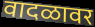
वादळावर